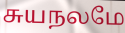
சுயநலமே